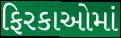
ફિરકાઓમાં